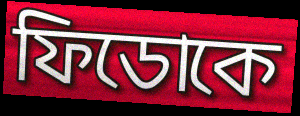
ফিডোকে